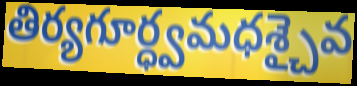
తిర్యగూర్ధ్వమధశ్చైవ